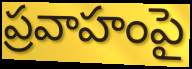
ప్రవాహంపై